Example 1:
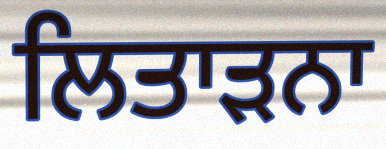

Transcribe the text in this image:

ਲਿਤਾੜਨਾ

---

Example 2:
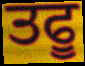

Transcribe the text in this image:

ਤਫੂ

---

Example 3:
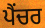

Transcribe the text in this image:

ਪੈਂਚਰ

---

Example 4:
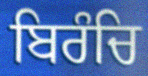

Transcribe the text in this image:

ਬਿਰੰਚਿ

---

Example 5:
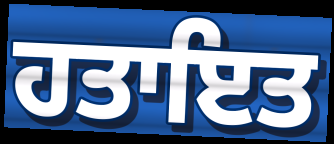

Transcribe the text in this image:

ਹਤਾਇਤ